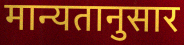
मान्यतानुसार